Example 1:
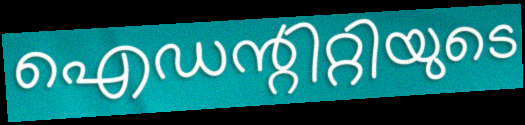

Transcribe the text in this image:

ഐഡന്റിറ്റിയുടെ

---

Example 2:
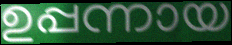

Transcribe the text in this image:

ഉപ്പന്നായ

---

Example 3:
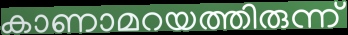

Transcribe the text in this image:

കാണാമറയത്തിരുന്ന്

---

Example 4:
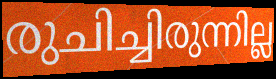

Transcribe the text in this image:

രുചിച്ചിരുന്നില്ല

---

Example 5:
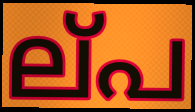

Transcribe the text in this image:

ല്‌പ